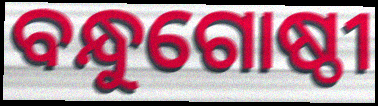
ବନ୍ଧୁଗୋଷ୍ଠୀ